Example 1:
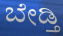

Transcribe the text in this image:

ಬೇಡ್ತಿ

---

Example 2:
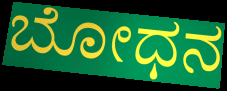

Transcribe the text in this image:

ಬೋಧನ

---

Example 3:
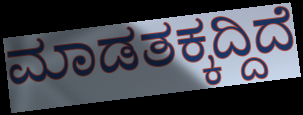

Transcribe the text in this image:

ಮಾಡತಕ್ಕದ್ದಿದೆ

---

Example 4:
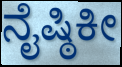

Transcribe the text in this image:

ನೈಷ್ಠಿಕೀ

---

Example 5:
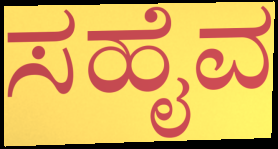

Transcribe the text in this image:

ಸಹೈವ